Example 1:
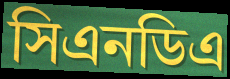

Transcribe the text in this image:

সিএনডিএ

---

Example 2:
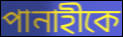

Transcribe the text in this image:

পানাহীকে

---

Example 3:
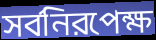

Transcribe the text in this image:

সর্বনিরপেক্ষ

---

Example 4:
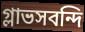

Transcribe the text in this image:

গ্লাভসবন্দি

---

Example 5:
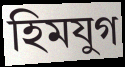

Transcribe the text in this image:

হিমযুগ